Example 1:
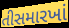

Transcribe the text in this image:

તીસમારખાં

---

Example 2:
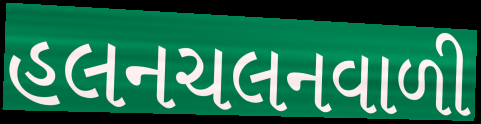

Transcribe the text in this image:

હલનચલનવાળી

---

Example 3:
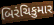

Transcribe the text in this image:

બિરંચિકુમાર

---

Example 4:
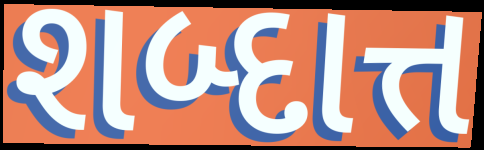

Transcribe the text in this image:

શબ્દાત્ત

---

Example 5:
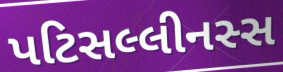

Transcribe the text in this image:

પટિસલ્લીનસ્સ